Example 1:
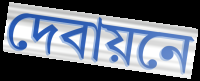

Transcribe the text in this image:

দেবায়নে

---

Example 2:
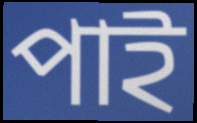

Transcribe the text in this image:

পাই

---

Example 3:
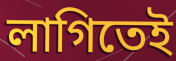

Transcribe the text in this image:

লাগিতেই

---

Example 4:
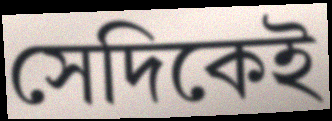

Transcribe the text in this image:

সেদিকেই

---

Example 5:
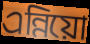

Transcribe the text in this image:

এন্নিয়ো